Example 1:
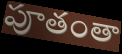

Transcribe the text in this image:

పూతంతా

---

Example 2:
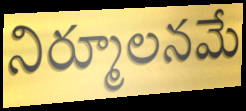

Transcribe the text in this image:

నిర్మూలనమే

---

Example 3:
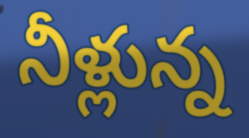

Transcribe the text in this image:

నీళ్లున్న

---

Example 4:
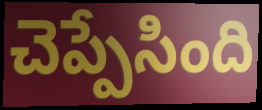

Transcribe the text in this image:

చెప్పేసింది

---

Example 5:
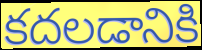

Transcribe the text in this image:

కదలడానికి